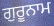
ਗੁਰੂਨਾਮ